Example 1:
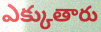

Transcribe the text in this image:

ఎక్కుతారు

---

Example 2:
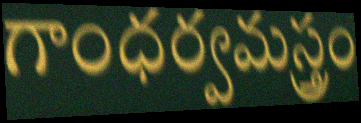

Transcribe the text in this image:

గాంధర్వమస్త్రం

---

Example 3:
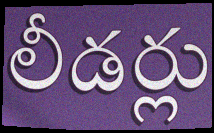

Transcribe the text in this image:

లీడర్లు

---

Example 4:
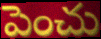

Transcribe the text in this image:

పెంచు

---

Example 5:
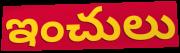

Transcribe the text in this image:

ఇంచులు